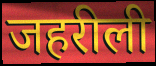
जहरीली